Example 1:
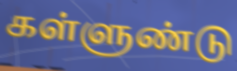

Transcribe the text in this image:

கள்ளுண்டு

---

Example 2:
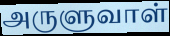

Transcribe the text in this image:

அருளுவாள்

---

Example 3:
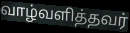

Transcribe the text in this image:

வாழ்வளித்தவர்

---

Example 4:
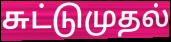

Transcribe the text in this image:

சுட்டுமுதல்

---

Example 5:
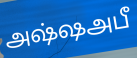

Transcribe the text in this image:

அஷ்ஷஅபீ